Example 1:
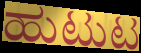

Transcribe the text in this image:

ಹುಟುಟ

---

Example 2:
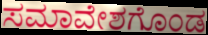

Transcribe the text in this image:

ಸಮಾವೇಶಗೊಂಡ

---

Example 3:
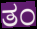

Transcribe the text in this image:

ತಂ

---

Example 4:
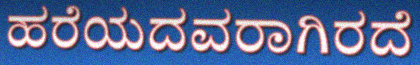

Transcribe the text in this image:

ಹರೆಯದವರಾಗಿರದೆ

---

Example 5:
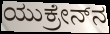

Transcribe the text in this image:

ಯುಕ್ರೇನ್‌ನ